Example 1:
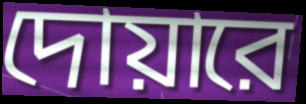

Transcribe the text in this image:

দোয়ারে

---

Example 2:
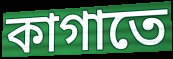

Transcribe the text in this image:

কাগাতে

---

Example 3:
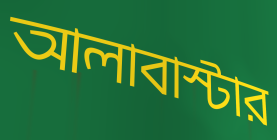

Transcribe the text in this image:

আলাবাস্টার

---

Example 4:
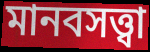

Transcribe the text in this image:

মানবসত্ত্বা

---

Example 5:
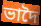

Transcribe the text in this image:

ভাদৈ